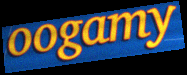
oogamy